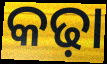
କଢ଼ା